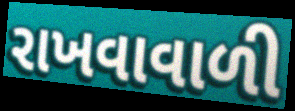
રાખવાવાળી